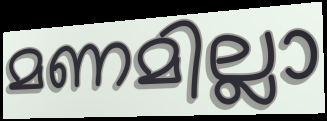
മണമില്ലാ